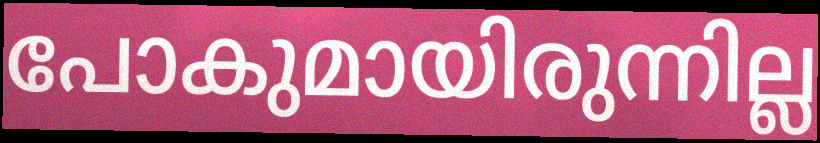
പോകുമായിരുന്നില്ല